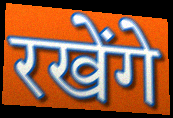
रखेंगे